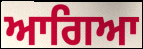
ਆਗਿਆ